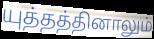
யுத்தத்தினாலும்